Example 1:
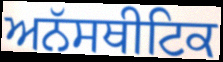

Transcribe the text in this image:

ਅਨੱਸਥੀਟਿਕ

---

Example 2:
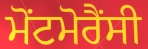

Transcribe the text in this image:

ਮੋਂਟਮੋਰੈਂਸੀ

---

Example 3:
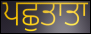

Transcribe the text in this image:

ਪਛੁਤਾਤਾ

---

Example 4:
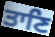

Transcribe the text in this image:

ਤਾਣਿ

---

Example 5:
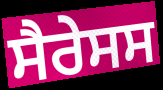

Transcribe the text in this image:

ਸੈਰੇਸਸ